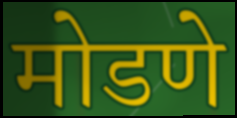
मोडणे